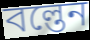
বল্তেন